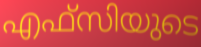
എഫ്സിയുടെ